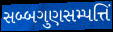
સબ્બગુણસમ્પત્તિં